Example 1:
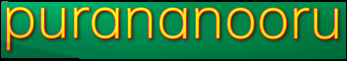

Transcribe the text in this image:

purananooru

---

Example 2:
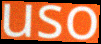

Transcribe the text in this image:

uso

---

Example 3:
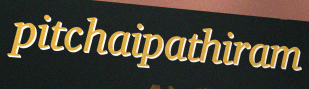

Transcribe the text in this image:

pitchaipathiram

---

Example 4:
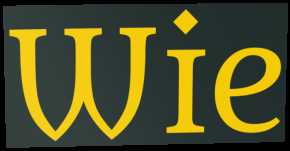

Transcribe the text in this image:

Wie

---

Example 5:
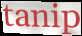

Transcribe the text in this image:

tanip